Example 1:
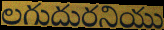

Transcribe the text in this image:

లగుదురనియు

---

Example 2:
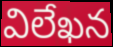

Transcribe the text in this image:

విలేఖన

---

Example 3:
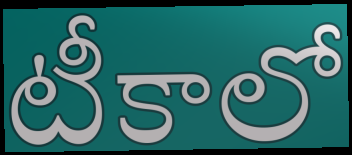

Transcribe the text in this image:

టీకాలో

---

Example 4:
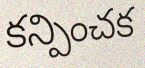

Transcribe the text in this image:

కన్పించక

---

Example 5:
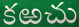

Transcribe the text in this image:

కఱచు